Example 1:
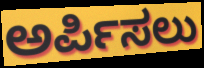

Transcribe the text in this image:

ಅರ್ಪಿಸಲು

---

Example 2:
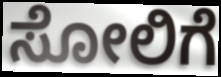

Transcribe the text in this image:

ಸೋಲಿಗೆ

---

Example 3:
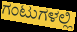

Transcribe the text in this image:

ಗಂಟುಗಳಲ್ಲಿ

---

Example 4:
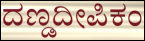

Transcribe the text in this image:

ದಣ್ಡದೀಪಿಕಂ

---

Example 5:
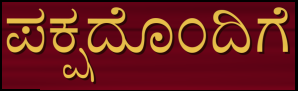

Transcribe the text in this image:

ಪಕ್ಷದೊಂದಿಗೆ